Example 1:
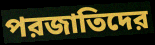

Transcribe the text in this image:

পরজাতিদের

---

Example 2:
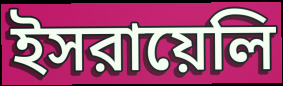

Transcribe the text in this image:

ইসরায়েলি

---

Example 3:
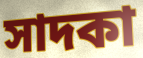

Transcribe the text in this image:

সাদকা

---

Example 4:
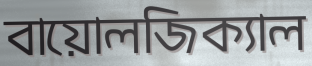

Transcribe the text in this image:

বায়োলজিক্যাল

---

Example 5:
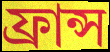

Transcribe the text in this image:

ফ্রান্স